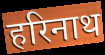
हरिनाथ